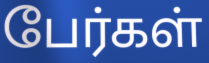
பேர்கள்